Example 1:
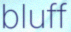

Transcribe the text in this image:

bluff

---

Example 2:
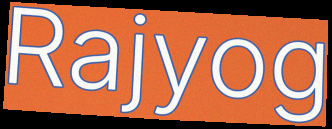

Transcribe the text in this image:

Rajyog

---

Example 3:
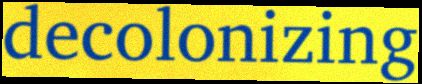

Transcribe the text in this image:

decolonizing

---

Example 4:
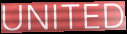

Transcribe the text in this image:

UNITED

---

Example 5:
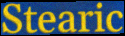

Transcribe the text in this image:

Stearic